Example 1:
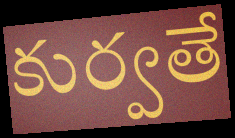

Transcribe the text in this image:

కుర్వతే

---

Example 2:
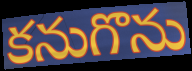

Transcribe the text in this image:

కనుగొను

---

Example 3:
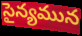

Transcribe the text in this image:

సైన్యమున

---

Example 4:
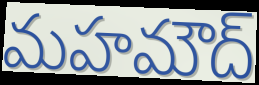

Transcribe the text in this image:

మహమౌద్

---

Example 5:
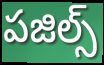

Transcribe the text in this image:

పజిల్స్